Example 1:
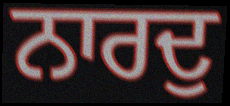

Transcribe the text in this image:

ਨਾਰਦੁ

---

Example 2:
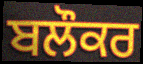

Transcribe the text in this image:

ਬਲੌਕਰ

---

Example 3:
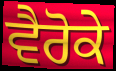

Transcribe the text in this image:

ਵੈਰੋਕੇ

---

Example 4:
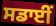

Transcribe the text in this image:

ਸਡਾਈਂ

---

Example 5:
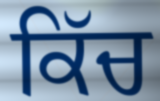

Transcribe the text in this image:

ਕਿੱਚ